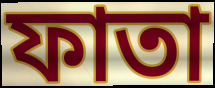
ফাতা